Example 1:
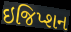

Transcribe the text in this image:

ઇજિપ્શન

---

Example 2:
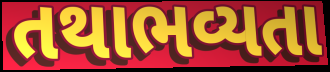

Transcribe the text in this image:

તથાભવ્યતા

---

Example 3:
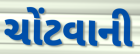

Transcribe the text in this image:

ચોંટવાની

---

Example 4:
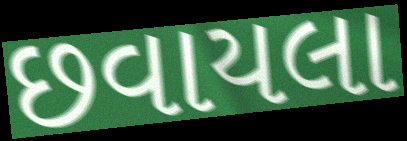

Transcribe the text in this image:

છવાયલા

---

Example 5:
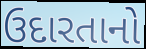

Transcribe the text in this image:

ઉદારતાનો